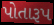
પોતારૂપ